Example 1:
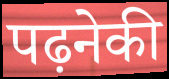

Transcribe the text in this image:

पढ़नेकी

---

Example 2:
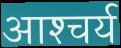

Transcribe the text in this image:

आश्‍चर्य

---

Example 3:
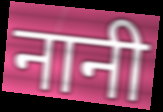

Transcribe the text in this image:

नानी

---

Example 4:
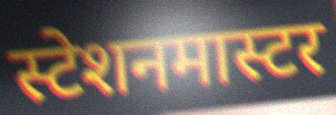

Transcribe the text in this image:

स्टेशनमास्टर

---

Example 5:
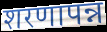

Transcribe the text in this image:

शरणापन्न